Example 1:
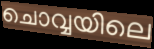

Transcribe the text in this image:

ചൊവ്വയിലെ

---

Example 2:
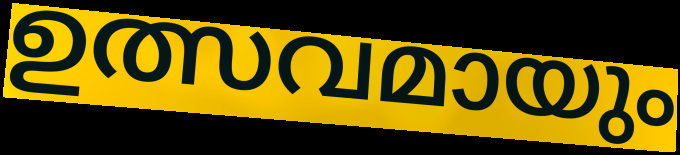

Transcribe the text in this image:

ഉത്സവമായും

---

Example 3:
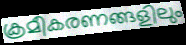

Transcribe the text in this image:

ക്രമീകരണങ്ങളിലും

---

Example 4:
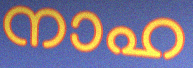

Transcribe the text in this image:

നാഹ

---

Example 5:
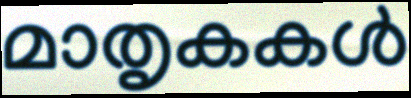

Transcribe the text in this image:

മാതൃകകൾ